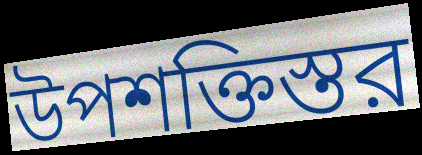
উপশক্তিস্তর